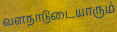
வளநாடுடையாரும்